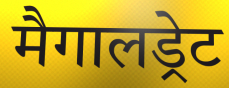
मैगालड्रेट